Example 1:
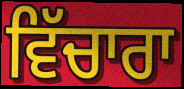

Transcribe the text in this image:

ਵਿੱਚਾਰਾ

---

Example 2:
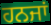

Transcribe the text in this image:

ਹਨਜਾਂ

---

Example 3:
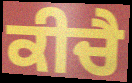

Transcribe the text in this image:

ਕੀਚੈ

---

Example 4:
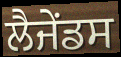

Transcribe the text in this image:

ਲੈਜੇਂਡਸ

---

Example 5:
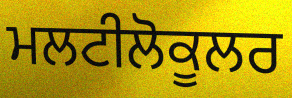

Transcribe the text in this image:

ਮਲਟੀਲੋਕੂਲਰ